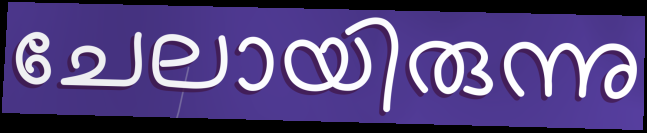
ചേലായിരുന്നു